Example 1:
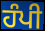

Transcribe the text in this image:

ਹੰਪੀ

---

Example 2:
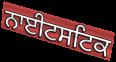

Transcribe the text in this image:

ਨਾਈਟਸਟਿਕ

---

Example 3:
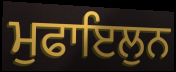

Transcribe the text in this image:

ਮੁਫਾਇਲੁਨ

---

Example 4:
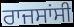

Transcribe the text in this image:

ਰਾਜਸਾਂਸੀ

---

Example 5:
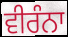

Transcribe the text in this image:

ਵੀਰੰਨਾ